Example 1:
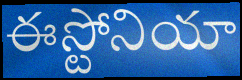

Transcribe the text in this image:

ఈస్టోనియా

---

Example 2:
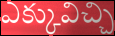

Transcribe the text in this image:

ఎక్కువిచ్చి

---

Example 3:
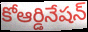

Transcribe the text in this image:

కోఆర్డినేషన్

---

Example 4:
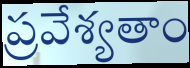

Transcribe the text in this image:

ప్రవేశ్యతాం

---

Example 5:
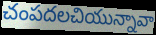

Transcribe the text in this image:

చంపదలచియున్నావా